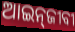
ଆଇନ୍‌ଜୀବୀ